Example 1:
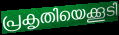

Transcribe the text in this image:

പ്രകൃതിയെക്കൂടി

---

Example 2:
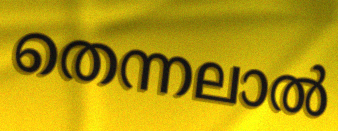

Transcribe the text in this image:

തെന്നലാൽ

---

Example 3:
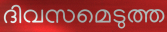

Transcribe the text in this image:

ദിവസമെടുത്ത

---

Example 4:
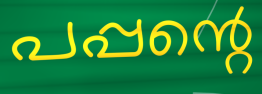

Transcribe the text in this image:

പപ്പന്റെ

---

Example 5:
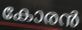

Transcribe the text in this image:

കോരൻ